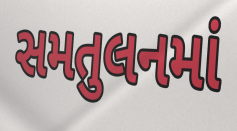
સમતુલનમાં